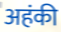
अहंकी